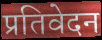
प्रतिवेदन